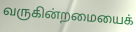
வருகின்றமையைக்